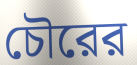
চৌরের